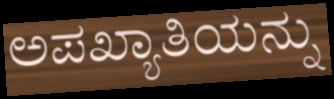
ಅಪಖ್ಯಾತಿಯನ್ನು